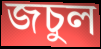
জচুল